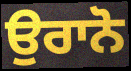
ਉਰਾਨੋ